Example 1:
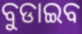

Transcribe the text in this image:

ବୁଡାଇବ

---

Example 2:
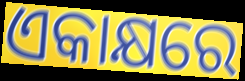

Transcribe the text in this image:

ଏକାକ୍ଷରେ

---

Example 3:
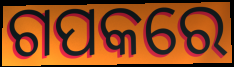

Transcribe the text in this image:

ଗପକରେ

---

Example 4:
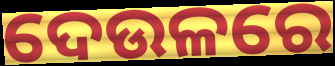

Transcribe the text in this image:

ଦେଉଳରେ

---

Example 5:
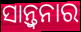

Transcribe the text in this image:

ସାନ୍ତ୍ବନାର